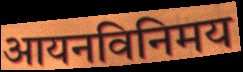
आयनविनिमय